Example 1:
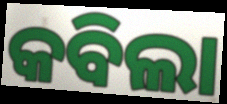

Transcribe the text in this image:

କବିଲା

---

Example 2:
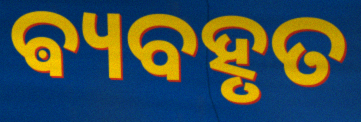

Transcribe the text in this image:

ଵ୍ୟବହୃତ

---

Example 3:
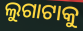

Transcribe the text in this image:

ଲୁଗାଟାକୁ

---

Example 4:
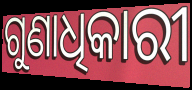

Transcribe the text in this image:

ଗୁଣାଧିକାରୀ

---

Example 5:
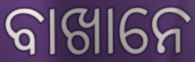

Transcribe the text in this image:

ବାଖାନେ